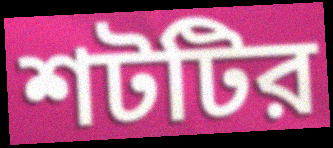
শটটির